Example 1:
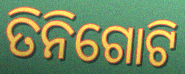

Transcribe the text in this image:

ତିନିଗୋଟି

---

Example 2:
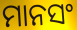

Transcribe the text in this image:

ମାନସଂ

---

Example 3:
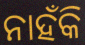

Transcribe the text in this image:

ନାହଁକି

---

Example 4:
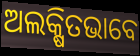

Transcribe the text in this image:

ଅଲକ୍ଷିତଭାବେ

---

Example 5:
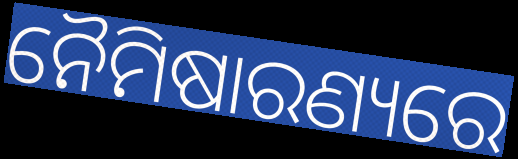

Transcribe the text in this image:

ନୈମିଷାରଣ୍ୟରେ